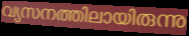
വ്യസനത്തിലായിരുന്നു